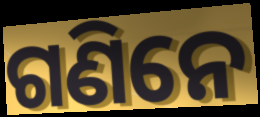
ଗଣିନେ